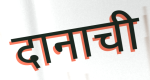
दानाची